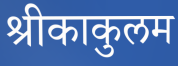
श्रीकाकुलम